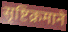
सृष्टिक्रमाने